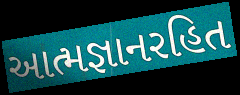
આત્મજ્ઞાનરહિત